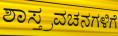
ಶಾಸ್ತ್ರವಚನಗಳಿಗೆ